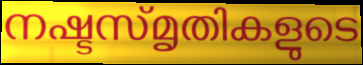
നഷ്ടസ്മൃതികളുടെ